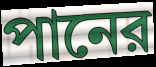
পানের